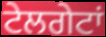
ਟੇਲਗੇਟਾਂ